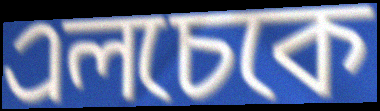
এলচেকে